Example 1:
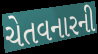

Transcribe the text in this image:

ચેતવનારની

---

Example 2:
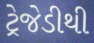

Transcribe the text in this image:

ટ્રેજેડીથી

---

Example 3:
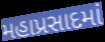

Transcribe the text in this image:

મહાપ્રસાદમાં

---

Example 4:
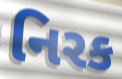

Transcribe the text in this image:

નિરક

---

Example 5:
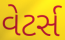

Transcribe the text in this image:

વેટર્સ